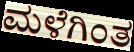
ಮಳೆಗಿಂತ